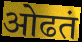
ओढतं